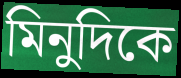
মিনুদিকে